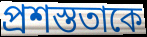
প্রশস্ততাকে